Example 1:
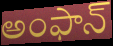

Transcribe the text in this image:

అంఫాన్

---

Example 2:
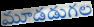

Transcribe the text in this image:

మూడడుగల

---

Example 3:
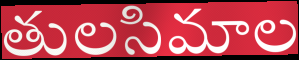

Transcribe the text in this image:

తులసిమాల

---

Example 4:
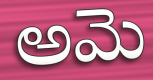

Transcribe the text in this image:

అమె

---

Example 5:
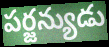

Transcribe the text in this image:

పర్జన్యుడు